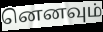
னெனவும்